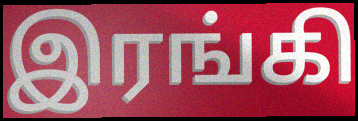
இரங்கி